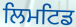
ਲਿਮਟਿਡ